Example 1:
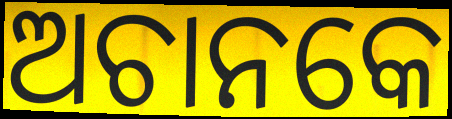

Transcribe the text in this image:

ଅଚାନକେ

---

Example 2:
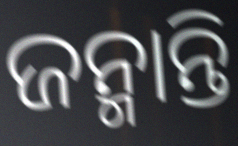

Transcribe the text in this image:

ଜନ୍ମାନ୍ତି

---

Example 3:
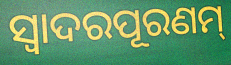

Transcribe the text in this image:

ସ୍ଵାଦରପୂରଣମ୍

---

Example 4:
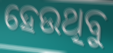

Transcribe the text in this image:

ହେଉଥିବୁ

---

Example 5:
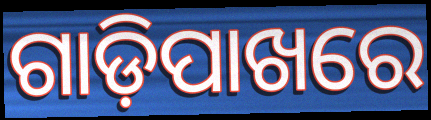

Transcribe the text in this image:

ଗାଡ଼ିପାଖରେ